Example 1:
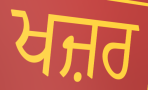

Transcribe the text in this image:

ਖਜ਼ਰ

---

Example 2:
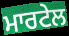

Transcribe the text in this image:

ਮਾਰਟੇਲ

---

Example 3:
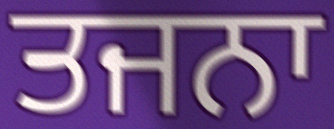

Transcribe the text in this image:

ਤਜਨਾ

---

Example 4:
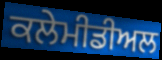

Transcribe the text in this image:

ਕਲੇਮੀਡੀਅਲ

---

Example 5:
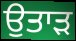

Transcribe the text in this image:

ਉਤਾਡ਼